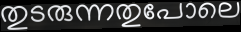
തുടരുന്നതുപോലെ